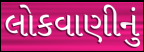
લોકવાણીનું